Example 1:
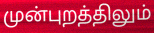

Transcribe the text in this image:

முன்புறத்திலும்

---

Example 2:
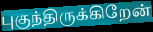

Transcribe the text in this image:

புகுந்திருக்கிறேன்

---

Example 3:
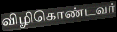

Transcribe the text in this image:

விழிகொண்டவர்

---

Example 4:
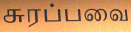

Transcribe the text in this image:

சுரப்பவை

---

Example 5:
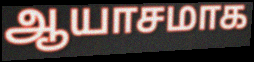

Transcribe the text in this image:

ஆயாசமாக